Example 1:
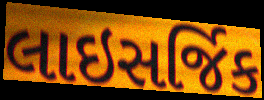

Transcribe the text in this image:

લાઇસર્જિક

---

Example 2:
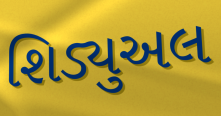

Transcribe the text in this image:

શિડ્યુઅલ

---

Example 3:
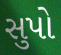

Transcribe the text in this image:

સુપો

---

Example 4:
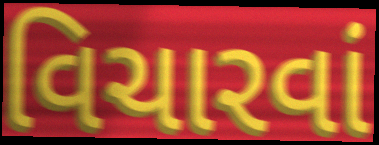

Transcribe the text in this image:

વિચારવાં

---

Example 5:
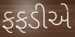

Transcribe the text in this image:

ફફડીએ